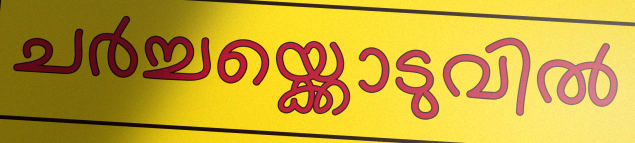
ചർച്ചയ്ക്കൊടുവിൽ